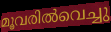
മൂവരിൽവെച്ചു